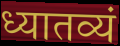
ध्यातव्यं